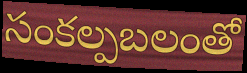
సంకల్పబలంతో